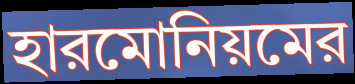
হারমোনিয়মের